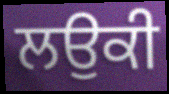
ਲਉਕੀ